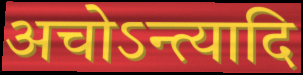
अचोऽन्त्यादि